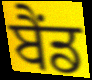
ਬੈਂਡ